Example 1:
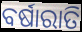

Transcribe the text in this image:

ବର୍ଷାରାତି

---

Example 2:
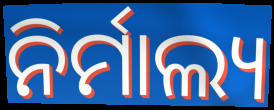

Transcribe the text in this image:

ନିର୍ମାଲ୍ୟ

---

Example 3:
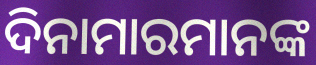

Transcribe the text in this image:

ଦିନାମାରମାନଙ୍କ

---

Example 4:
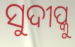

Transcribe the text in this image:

ସୁଦୀପ୍କୁ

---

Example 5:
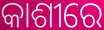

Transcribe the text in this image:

କାଶୀରେ